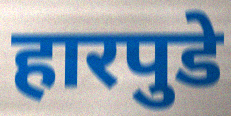
हारपुडे